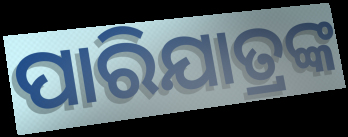
ପାରିଯାତ୍ରଙ୍କ